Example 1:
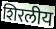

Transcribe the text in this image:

शिरलीय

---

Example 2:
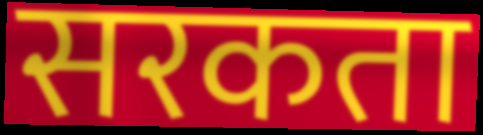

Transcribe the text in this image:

सरकता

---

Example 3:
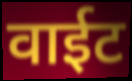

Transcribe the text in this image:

वाईट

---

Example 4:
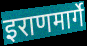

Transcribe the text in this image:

इराणमार्गे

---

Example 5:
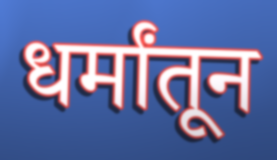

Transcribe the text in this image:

धर्मांतून